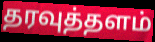
தரவுத்தளம்